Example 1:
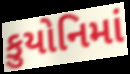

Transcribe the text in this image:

કુયોનિમાં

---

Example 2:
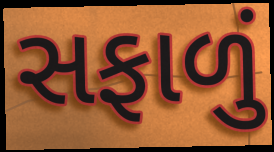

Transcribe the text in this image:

સફાળું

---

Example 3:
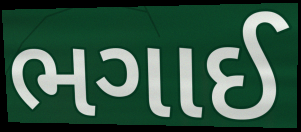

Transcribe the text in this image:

ભગાઈ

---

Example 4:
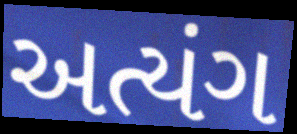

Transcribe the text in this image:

અત્યંગ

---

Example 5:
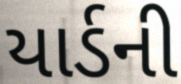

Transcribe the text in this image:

યાર્ડની